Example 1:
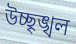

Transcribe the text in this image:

উচ্ছৃঙ্খল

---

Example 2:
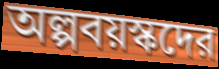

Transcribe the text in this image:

অল্পবয়স্কদের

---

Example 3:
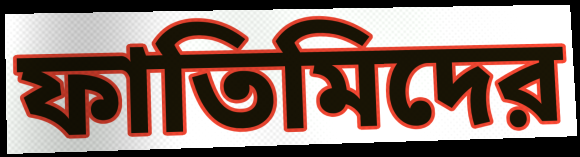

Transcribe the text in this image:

ফাতিমিদের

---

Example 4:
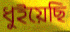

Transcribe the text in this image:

ধুইয়েছি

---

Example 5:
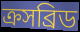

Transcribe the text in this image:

ক্রসব্রিড